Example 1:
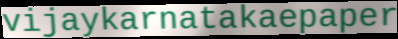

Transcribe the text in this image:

vijaykarnatakaepaper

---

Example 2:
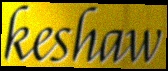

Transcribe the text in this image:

keshaw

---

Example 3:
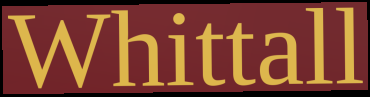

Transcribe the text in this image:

Whittall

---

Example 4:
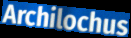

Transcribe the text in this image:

Archilochus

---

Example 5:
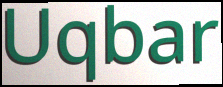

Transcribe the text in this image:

Uqbar